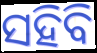
ସହିବି